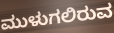
ಮುಳುಗಲಿರುವ